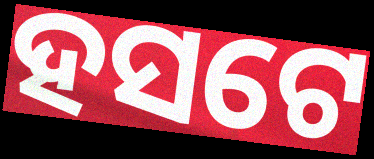
ହସଟେ